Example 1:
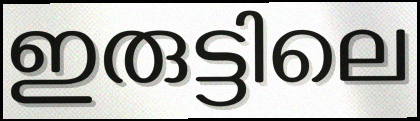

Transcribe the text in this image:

ഇരുട്ടിലെ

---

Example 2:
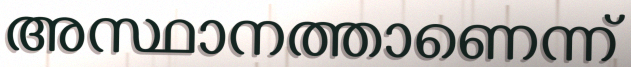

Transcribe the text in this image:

അസ്ഥാനത്താണെന്ന്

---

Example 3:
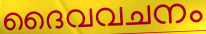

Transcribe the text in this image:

ദൈവവചനം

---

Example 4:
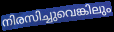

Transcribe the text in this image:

നിരസിച്ചുവെങ്കിലും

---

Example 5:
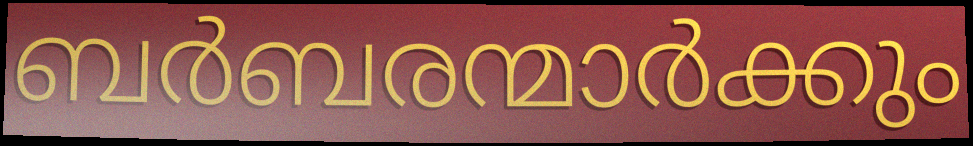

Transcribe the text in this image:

ബർബരന്മാർക്കും